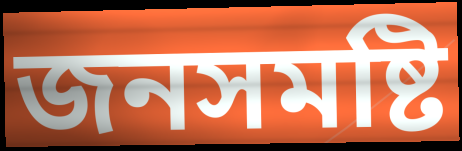
জনসমষ্টি